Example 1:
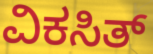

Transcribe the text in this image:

ವಿಕಸಿತ್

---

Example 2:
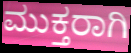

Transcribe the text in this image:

ಮುಕ್ತರಾಗಿ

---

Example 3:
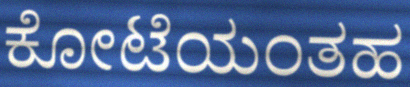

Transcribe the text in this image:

ಕೋಟೆಯಂತಹ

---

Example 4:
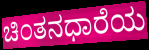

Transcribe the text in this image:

ಚಿಂತನಧಾರೆಯ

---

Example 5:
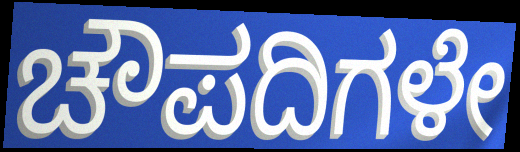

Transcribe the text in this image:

ಚೌಪದಿಗಳೇ